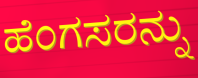
ಹೆಂಗಸರನ್ನು